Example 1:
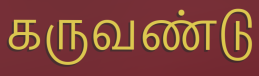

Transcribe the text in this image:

கருவண்டு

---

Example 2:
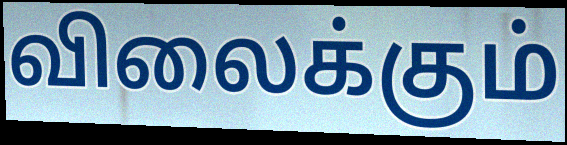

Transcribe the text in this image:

விலைக்கும்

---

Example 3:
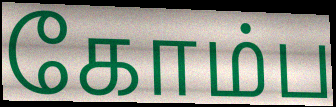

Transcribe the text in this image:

கோம்ப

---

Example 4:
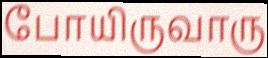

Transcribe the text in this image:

போயிருவாரு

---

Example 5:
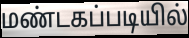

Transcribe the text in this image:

மண்டகப்படியில்